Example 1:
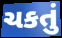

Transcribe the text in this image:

ચકતું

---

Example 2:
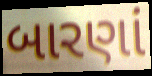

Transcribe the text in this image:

બારણાં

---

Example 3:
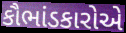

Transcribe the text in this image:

કૌભાંડકારોએ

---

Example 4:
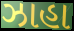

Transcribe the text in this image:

ઝાહા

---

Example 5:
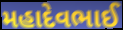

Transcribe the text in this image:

મહાદેવભાઈ